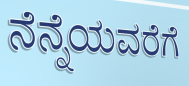
ನೆನ್ನೆಯವರೆಗೆ